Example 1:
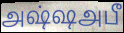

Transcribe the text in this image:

அஷ்ஷஅபீ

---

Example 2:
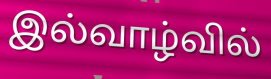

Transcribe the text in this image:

இல்வாழ்வில்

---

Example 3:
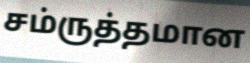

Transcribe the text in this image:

சம்ருத்தமான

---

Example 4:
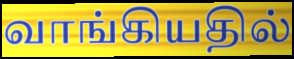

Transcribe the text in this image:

வாங்கியதில்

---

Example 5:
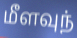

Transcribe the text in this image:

மீளவுந்